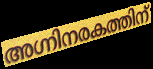
അഗ്നിനരകത്തിന്